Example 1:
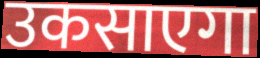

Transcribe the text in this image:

उकसाएगा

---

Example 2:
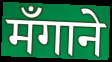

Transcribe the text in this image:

मँगाने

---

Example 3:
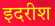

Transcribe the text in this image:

इदरीश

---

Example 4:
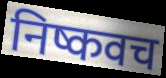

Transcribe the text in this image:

निष्कवच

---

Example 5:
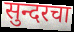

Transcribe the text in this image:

सुन्दरचा